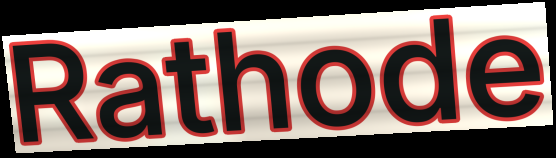
Rathode